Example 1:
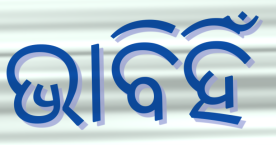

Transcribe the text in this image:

ଭାବିହିଁ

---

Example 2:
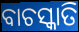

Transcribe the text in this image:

ବାଚସ୍କାତି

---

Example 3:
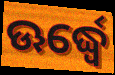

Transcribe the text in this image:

ଊର୍ଦ୍ଧ୍ୱେ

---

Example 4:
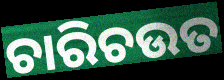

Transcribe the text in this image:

ଚାରିଚଉତ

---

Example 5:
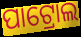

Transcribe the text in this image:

ପାଟ୍ରୋଲ